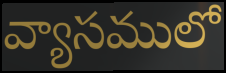
వ్యాసములో